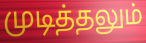
முடித்தலும்